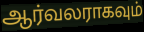
ஆர்வலராகவும்